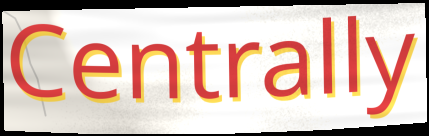
Centrally